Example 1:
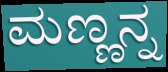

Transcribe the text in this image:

ಮಣ್ಣನ್ನ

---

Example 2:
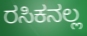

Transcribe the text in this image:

ರಸಿಕನಲ್ಲ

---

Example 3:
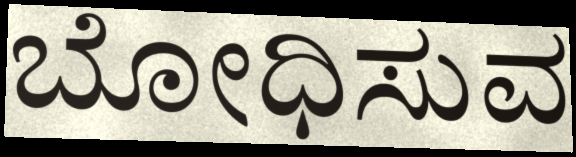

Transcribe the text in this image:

ಬೋಧಿಸುವ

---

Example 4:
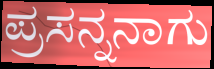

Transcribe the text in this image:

ಪ್ರಸನ್ನನಾಗು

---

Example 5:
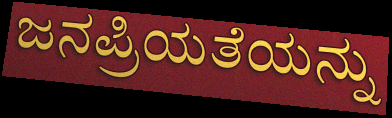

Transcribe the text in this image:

ಜನಪ್ರಿಯತೆಯನ್ನು